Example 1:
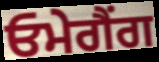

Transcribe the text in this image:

ਓਮੇਗੈਂਗ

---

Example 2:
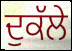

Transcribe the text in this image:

ਦੁਕੱਲੇ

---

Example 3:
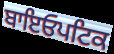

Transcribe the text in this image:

ਬਾਇਓਪਟਿਕ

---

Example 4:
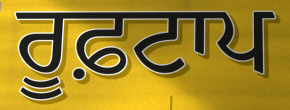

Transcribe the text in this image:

ਰੂਫ਼ਟਾਪ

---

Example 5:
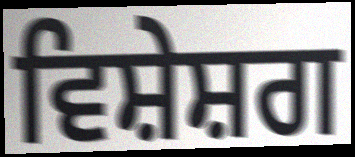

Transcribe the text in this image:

ਵਿਸ਼ੇਸ਼ਗ